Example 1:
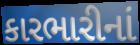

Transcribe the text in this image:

કારભારીનાં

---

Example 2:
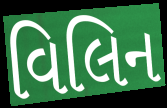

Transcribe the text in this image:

વિલિન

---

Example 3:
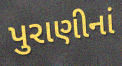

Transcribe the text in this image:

પુરાણીનાં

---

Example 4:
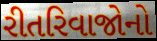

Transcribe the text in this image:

રીતરિવાજોનો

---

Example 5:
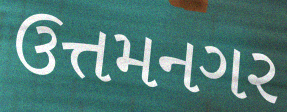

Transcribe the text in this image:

ઉત્તમનગર